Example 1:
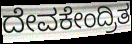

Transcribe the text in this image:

ದೇವಕೇಂದ್ರಿತ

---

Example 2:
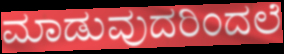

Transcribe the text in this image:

ಮಾಡುವುದರಿಂದಲೆ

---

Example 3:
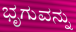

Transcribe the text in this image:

ಭೃಗುವನ್ನು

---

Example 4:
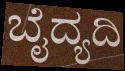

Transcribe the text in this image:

ಬೈದ್ಯದಿ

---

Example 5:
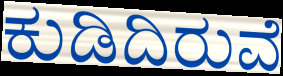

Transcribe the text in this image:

ಕುಡಿದಿರುವೆ